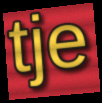
tje